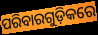
ପରିବାରଗୁଡ଼ିକରେ